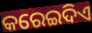
କରେଇଦିଏ